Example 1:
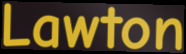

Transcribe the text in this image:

Lawton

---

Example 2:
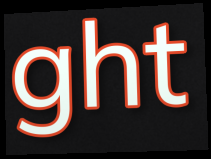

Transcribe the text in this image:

ght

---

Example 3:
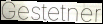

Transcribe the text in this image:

Gestetner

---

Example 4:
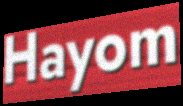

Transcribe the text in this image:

Hayom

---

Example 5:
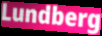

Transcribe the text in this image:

Lundberg